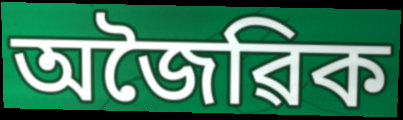
অজৈৱিক